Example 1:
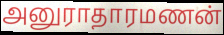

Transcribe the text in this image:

அனுராதாரமணன்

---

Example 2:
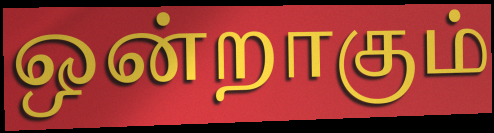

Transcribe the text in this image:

ஒன்றாகும்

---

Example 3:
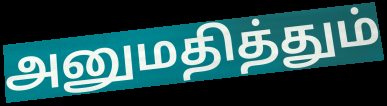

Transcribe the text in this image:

அனுமதித்தும்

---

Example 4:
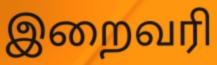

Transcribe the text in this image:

இறைவரி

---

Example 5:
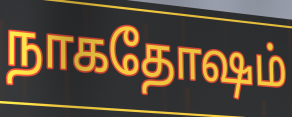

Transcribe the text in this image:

நாகதோஷம்